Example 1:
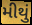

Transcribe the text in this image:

મીથું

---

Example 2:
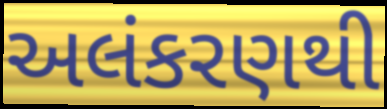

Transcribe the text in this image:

અલંકરણથી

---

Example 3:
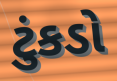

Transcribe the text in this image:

ટુંકડો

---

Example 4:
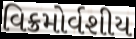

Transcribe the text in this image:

વિક્રમોર્વશીય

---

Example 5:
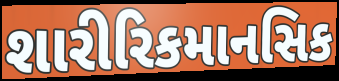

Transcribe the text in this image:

શારીરિકમાનસિક